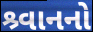
શ્ર્વાનનો